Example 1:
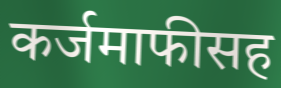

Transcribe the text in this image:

कर्जमाफीसह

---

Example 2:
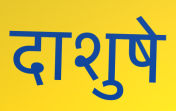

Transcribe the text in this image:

दाशुषे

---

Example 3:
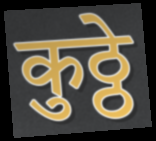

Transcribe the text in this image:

कुठ्ठे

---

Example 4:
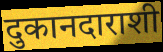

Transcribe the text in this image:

दुकानदाराशी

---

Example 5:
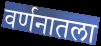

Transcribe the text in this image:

वर्णनातला